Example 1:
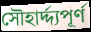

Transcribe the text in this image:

সৌহার্দ্দ্যপূর্ণ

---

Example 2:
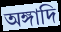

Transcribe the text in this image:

অঙ্গাদি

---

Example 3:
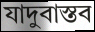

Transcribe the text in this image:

যাদুবাস্তব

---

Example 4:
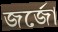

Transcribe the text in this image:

জর্জো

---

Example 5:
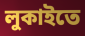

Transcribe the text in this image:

লুকাইতে